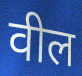
वील